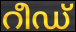
റീഡ്